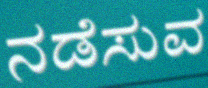
ನಡೆಸುವ